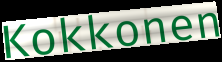
Kokkonen